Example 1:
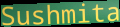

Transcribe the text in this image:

Sushmita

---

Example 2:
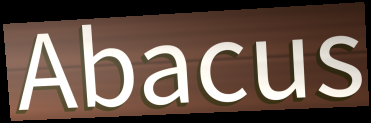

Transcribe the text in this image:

Abacus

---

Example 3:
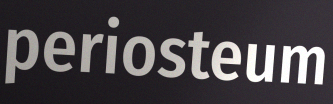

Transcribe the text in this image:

periosteum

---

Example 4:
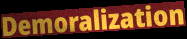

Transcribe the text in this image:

Demoralization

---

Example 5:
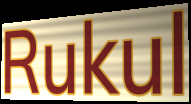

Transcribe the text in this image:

Rukul